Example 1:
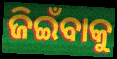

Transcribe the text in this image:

ଜିଇଁବାକୁ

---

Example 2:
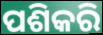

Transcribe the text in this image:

ପଶିକରି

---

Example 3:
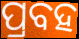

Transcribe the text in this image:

ପ୍ରବହ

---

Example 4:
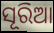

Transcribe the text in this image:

ସୂରିଆ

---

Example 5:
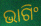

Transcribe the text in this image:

ଭାଗିଂ